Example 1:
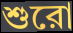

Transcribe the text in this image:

শুরো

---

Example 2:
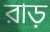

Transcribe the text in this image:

রাড়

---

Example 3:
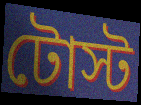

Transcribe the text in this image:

টোস্ট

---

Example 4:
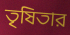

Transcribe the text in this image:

তৃষিতার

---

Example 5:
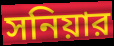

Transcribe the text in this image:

সনিয়ার